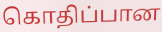
கொதிப்பான